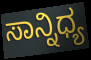
ಸಾನ್ನಿಧ್ಯ